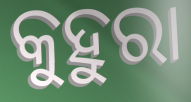
କୁହୁରା